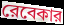
রেবেকার